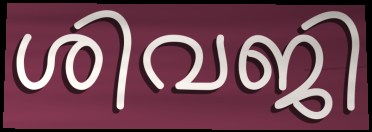
ശിവജി